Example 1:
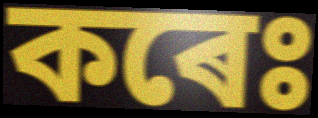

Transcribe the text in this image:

কৰেঃ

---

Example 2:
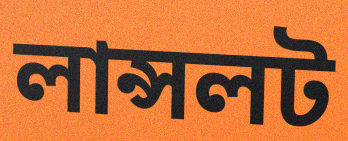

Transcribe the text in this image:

লান্সলট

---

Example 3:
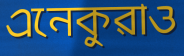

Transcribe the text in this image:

এনেকুৱাও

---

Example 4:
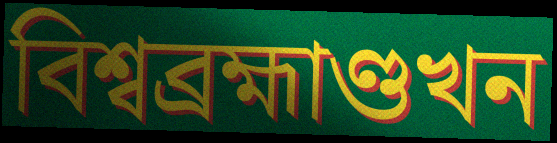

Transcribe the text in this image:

বিশ্বব্ৰহ্মাণ্ডখন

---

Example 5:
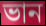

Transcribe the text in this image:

ভান